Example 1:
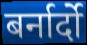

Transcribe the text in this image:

बर्नार्दो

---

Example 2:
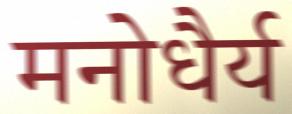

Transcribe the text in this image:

मनोधैर्य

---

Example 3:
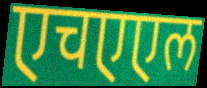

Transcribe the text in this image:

एचएएल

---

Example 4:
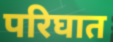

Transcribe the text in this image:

परिघात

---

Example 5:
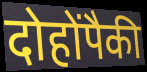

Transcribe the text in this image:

दोहोंपैकी